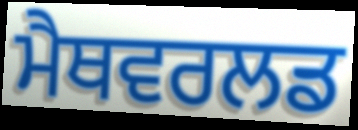
ਮੈਥਵਰਲਡ